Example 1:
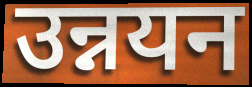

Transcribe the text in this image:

उन्नयन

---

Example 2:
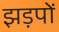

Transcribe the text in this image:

झड़पों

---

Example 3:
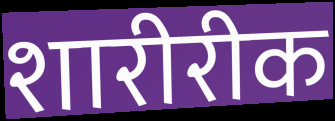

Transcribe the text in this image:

शारीरीक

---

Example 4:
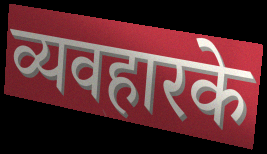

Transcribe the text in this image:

व्यवहारके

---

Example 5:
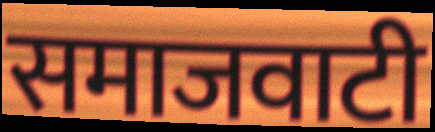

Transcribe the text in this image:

समाजवाटी